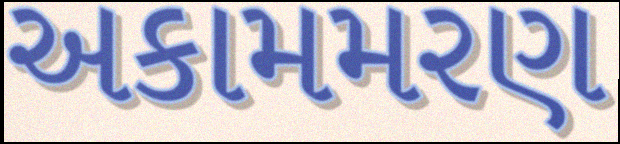
અકામમરણ